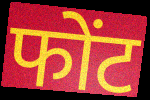
फोंट